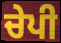
ਚੇਪੀ